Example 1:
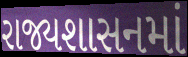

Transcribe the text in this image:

રાજ્યશાસનમાં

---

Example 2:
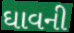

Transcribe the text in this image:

ઘાવની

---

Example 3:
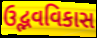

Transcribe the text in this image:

ઉદ્ભવવિકાસ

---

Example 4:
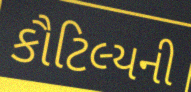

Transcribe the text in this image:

કૌટિલ્યની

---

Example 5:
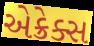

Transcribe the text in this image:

એક્રેક્સ